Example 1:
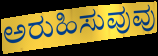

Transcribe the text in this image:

ಅರುಹಿಸುವುವು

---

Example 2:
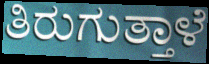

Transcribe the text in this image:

ತಿರುಗುತ್ತಾಳೆ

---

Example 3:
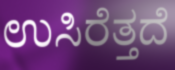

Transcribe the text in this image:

ಉಸಿರೆತ್ತದೆ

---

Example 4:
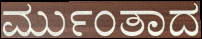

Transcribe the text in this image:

ರ್ಮುಂತಾದ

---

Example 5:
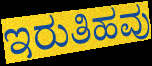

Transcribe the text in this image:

ಇರುತಿಹವು